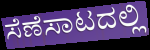
ಸೆಣೆಸಾಟದಲ್ಲಿ